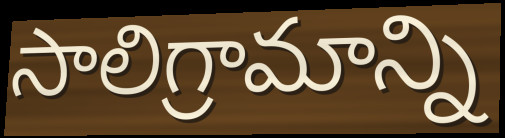
సాలిగ్రామాన్ని